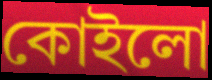
কোইলো